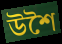
উশৈ